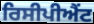
ਰਿਸੀਪੀਐਂਟ